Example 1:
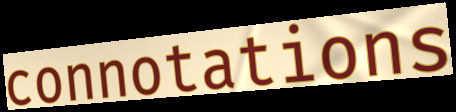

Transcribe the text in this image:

connotations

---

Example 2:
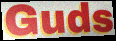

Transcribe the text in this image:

Guds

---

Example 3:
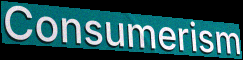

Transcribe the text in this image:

Consumerism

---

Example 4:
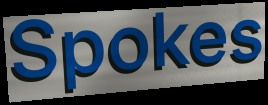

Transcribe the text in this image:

Spokes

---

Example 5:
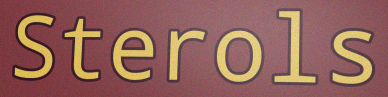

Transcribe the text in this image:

Sterols